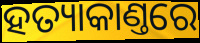
ହତ୍ୟାକାଣ୍ତରେ